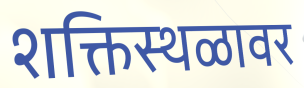
शक्तिस्थळावर